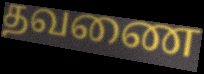
தவணை